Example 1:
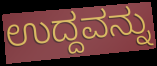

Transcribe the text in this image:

ಉದ್ದವನ್ನು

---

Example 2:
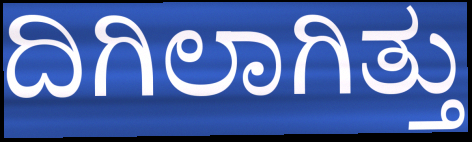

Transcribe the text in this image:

ದಿಗಿಲಾಗಿತ್ತು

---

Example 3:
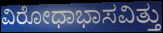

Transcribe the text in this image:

ವಿರೋಧಾಭಾಸವಿತ್ತು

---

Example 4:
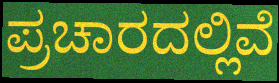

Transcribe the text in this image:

ಪ್ರಚಾರದಲ್ಲಿವೆ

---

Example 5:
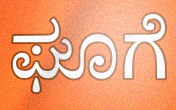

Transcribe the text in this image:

ಘೂಗೆ